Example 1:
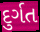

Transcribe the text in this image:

દુર્ગત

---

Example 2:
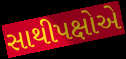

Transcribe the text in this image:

સાથીપક્ષોએ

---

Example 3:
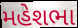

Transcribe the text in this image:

મહેશભા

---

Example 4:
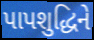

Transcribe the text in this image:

પાપશુદ્ધિને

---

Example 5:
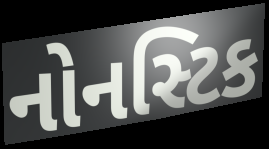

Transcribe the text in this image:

નોનસ્ટિક